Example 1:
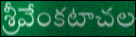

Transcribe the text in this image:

శ్రీవేంకటాచల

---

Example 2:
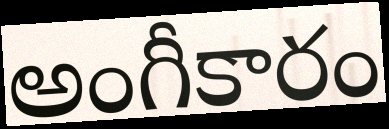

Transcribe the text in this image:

అంగీకారం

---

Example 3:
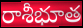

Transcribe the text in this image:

రాశీభూత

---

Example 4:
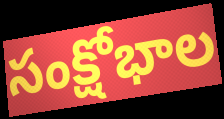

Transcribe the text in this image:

సంక్షోభాల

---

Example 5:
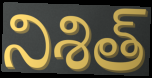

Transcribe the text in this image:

నిశిత్